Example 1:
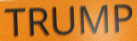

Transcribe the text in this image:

TRUMP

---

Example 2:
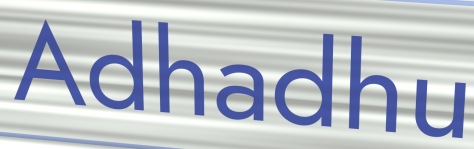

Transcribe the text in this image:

Adhadhu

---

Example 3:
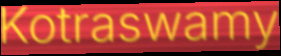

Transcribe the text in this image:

Kotraswamy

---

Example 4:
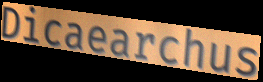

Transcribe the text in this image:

Dicaearchus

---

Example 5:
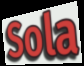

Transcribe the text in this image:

Sola